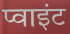
प्‍वाइंट